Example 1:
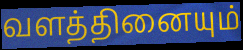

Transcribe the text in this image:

வளத்தினையும்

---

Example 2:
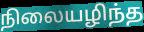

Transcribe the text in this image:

நிலையழிந்த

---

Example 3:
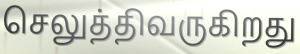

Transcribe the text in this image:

செலுத்திவருகிறது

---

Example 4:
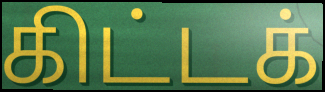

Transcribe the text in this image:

கிட்டக்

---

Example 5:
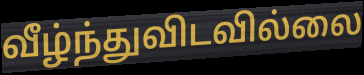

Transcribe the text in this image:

வீழ்ந்துவிடவில்லை